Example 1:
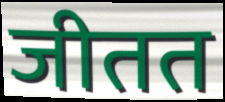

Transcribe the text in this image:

जीतत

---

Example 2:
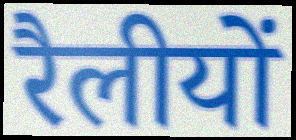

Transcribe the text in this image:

रैलीयों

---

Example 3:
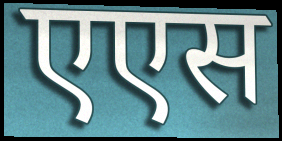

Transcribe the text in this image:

एएस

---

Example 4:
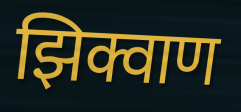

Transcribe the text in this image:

झिक्वाण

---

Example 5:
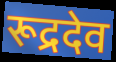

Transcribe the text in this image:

रूद्रदेव